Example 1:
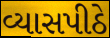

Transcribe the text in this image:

વ્યાસપીઠે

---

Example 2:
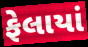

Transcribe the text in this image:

ફેલાયાં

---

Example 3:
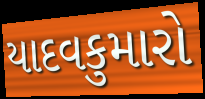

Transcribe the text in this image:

યાદવકુમારો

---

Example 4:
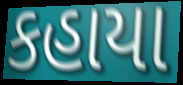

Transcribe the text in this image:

કહાયા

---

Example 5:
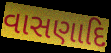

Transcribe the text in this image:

વાસણાદિ